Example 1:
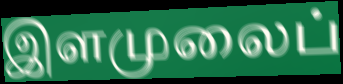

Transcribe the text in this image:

இளமுலைப்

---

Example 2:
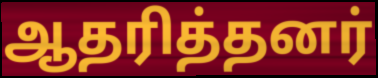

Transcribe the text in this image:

ஆதரித்தனர்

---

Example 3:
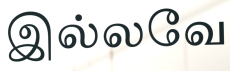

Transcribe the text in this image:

இல்லவே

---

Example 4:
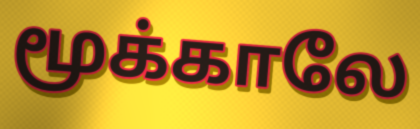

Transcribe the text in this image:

மூக்காலே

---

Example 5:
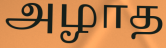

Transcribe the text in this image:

அழாத